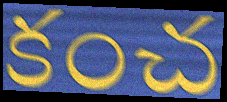
కంచ